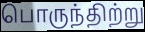
பொருந்திற்று